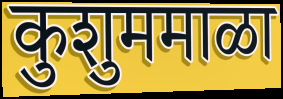
कुशुममाळा